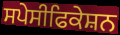
ਸਪੇਸੀਫਿਕੇਸ਼ਨ